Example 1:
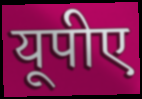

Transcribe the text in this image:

यूपीए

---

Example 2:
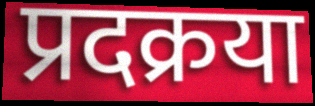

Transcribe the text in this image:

प्रदक्रया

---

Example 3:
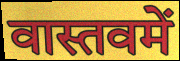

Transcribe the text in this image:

वास्तवमें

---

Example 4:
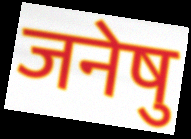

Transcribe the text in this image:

जनेषु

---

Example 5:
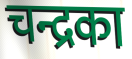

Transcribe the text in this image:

चन्द्रका